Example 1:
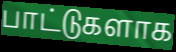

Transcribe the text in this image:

பாட்டுகளாக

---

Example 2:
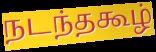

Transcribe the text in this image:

நடந்தகூழ்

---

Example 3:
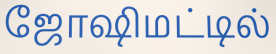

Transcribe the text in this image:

ஜோஷிமட்டில்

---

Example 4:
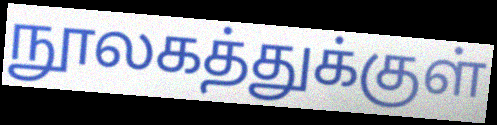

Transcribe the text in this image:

நூலகத்துக்குள்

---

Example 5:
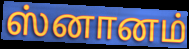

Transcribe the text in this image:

ஸ்னானம்